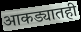
आकड्यातही